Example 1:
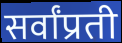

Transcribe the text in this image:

सर्वांप्रती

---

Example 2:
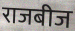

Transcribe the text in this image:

राजबीज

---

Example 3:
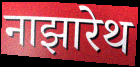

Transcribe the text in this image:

नाझारेथ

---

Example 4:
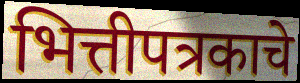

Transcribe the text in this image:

भित्तीपत्रकाचे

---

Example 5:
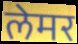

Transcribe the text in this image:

लेमर